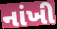
નાંખી